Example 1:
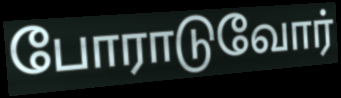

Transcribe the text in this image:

போராடுவோர்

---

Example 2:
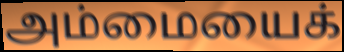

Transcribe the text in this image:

அம்மையைக்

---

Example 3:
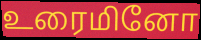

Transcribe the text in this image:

உரைமினோ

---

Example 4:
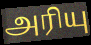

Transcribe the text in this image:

அரியு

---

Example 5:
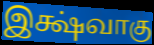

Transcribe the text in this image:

இக்ஷ்வாகு